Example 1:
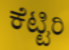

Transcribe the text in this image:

ಕೆಟ್ಟಿರಿ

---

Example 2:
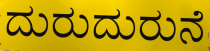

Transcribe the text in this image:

ದುರುದುರುನೆ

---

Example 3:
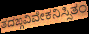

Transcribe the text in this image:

ತದಙ್ಗವಿವೇಕನಿಸ್ಸಿತಂ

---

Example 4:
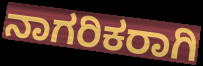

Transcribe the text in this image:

ನಾಗರಿಕರಾಗಿ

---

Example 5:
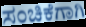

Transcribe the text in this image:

ಸಂಚಿಕೆಗಾಗಿ